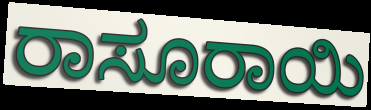
ರಾಸೂರಾಯಿ